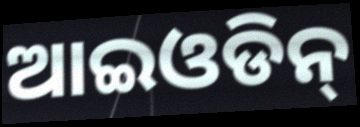
ଆଇଓଡିନ୍